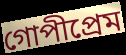
গোপীপ্রেম